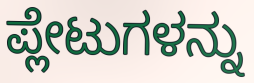
ಪ್ಲೇಟುಗಳನ್ನು